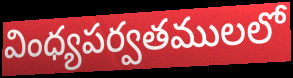
వింధ్యపర్వతములలో